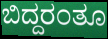
ಬಿದ್ದರಂತೂ